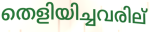
തെളിയിച്ചവരില്